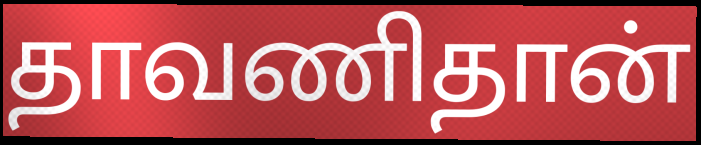
தாவணிதான்